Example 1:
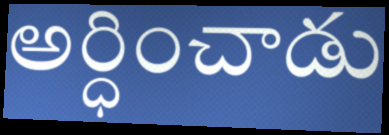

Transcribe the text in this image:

అర్ధించాడు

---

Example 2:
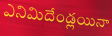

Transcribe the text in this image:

ఎనిమిదేండ్లయినా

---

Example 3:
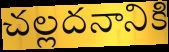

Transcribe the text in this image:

చల్లదనానికి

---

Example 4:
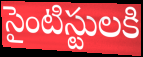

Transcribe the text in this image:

సైంటిస్టులకి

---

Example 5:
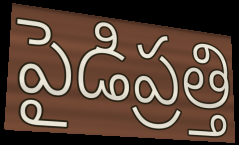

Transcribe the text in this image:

పైడిప్రత్తి